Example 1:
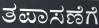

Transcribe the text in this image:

ತಪಾಸಣೆಗೆ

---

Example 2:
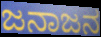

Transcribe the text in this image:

ಜನಾಜನ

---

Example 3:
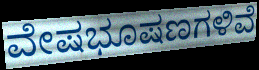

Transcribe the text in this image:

ವೇಷಭೂಷಣಗಳಿವೆ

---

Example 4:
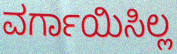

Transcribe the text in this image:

ವರ್ಗಾಯಿಸಿಲ್ಲ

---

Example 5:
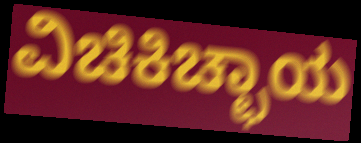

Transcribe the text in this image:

ವಿಚಿಕಿಚ್ಛಾಯ